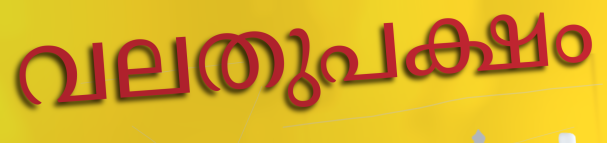
വലതുപക്ഷം